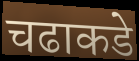
चढाकडे